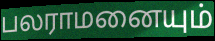
பலராமனையும்